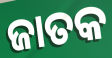
ଜାତକ